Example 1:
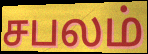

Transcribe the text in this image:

சபலம்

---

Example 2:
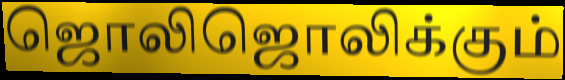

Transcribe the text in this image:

ஜொலிஜொலிக்கும்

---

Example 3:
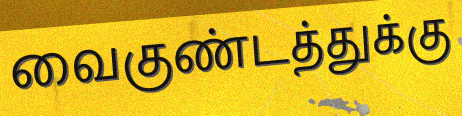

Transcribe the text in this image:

வைகுண்டத்துக்கு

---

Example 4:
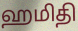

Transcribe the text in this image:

ஹமிதி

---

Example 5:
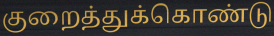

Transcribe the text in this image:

குறைத்துக்கொண்டு